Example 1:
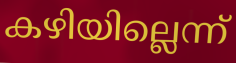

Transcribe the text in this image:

കഴിയില്ലെന്ന്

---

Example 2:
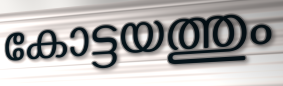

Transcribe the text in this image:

കോട്ടയത്തും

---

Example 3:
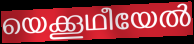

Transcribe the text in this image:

യെക്കൂഥീയേൽ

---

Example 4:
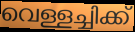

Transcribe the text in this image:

വെള്ളച്ചിക്ക്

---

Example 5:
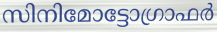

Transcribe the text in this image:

സിനിമോട്ടോഗ്രാഫർ